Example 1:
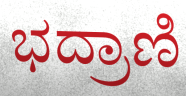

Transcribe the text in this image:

ಭದ್ರಾಣಿ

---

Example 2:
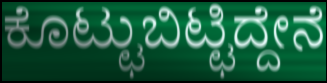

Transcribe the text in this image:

ಕೊಟ್ಟುಬಿಟ್ಟಿದ್ದೇನೆ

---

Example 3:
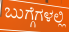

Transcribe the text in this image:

ಬುಗ್ಗೆಗಳಲ್ಲಿ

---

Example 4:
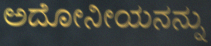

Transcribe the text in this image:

ಅದೋನೀಯನನ್ನು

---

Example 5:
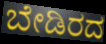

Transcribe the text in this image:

ಬೇಡಿರದ